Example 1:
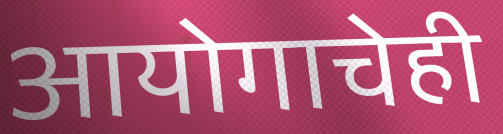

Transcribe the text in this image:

आयोगाचेही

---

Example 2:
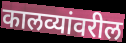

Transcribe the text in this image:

कालव्यांवरील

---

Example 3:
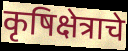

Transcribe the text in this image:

कृषिक्षेत्राचे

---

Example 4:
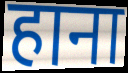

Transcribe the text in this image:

हाना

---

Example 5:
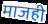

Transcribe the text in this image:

माजही